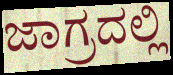
ಜಾಗ್ರದಲ್ಲಿ